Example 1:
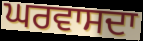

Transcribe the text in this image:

ਘਰਵਾਸਦਾ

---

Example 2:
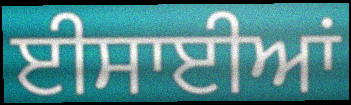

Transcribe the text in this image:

ਈਸਾਈਆਂ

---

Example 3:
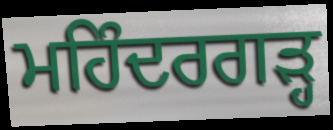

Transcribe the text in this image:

ਮਹਿੰਦਰਗੜ੍ਹ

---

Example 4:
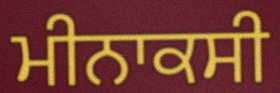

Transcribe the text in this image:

ਮੀਨਾਕਸੀ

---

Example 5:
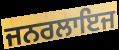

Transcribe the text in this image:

ਜਨਰਲਾਇਜ